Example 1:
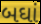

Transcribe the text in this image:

બઘાં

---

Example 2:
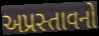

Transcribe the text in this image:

અપ્રસ્તાવનો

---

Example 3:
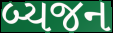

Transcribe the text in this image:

બ્યજન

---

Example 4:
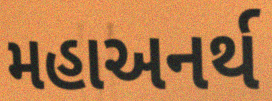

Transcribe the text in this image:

મહાઅનર્થ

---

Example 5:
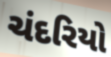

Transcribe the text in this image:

ચંદરિયો